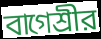
বাগেশ্রীর